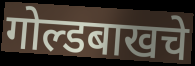
गोल्डबाखचे